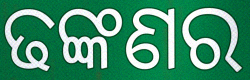
ଢଙ୍କଣର